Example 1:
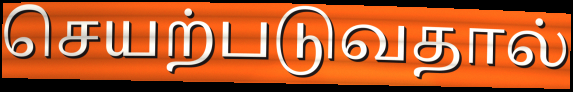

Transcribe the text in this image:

செயற்படுவதால்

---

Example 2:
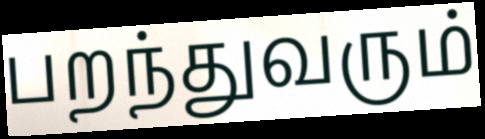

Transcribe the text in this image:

பறந்துவரும்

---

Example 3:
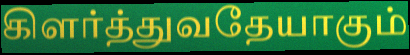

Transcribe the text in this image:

கிளர்த்துவதேயாகும்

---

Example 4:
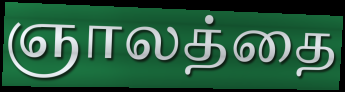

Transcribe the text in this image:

ஞாலத்தை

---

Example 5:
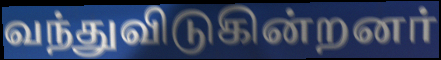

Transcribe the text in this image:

வந்துவிடுகின்றனர்